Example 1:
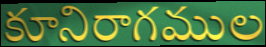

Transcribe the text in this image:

కూనిరాగముల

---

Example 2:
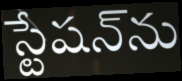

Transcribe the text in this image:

స్టేషన్‌ను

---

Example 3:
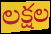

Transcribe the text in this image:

లక్షల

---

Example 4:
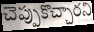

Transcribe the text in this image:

చెప్పుకొచ్చారని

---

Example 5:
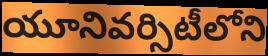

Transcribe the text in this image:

యూనివర్సిటీలోని